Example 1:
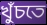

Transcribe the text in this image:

খুঁচতে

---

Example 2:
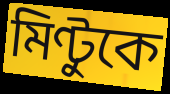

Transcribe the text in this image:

মিণ্টুকে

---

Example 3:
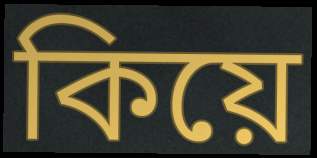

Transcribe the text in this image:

কিয়ে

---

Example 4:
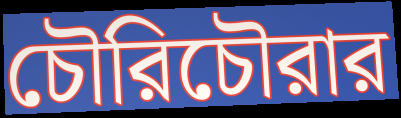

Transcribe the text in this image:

চৌরিচৌরার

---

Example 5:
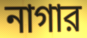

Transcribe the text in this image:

নাগার